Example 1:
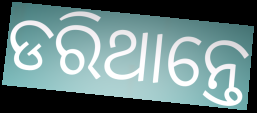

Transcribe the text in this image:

ଡରିଥାନ୍ତେ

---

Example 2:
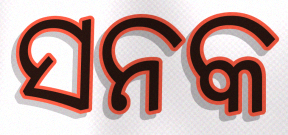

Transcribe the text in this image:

ସନକ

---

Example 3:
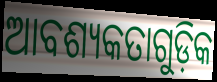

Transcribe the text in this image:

ଆବଶ୍ୟକତାଗୁଡ଼ିକ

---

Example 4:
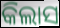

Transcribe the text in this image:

କିଲାସ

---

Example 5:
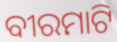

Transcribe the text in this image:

ବୀରମାଟି